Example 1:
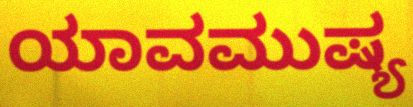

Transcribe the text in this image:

ಯಾವಮುಷ್ಯ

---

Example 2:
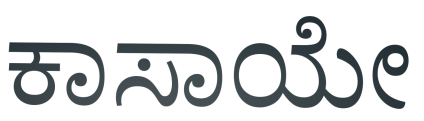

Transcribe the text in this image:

ಕಾಸಾಯೇ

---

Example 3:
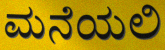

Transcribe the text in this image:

ಮನೆಯಲಿ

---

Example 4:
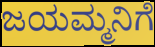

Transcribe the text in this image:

ಜಯಮ್ಮನಿಗೆ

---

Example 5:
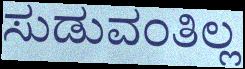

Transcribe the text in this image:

ಸುಡುವಂತಿಲ್ಲ